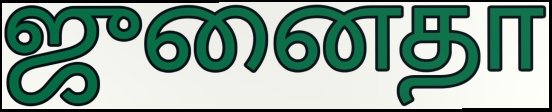
ஜுனைதா